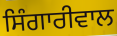
ਸਿੰਗਾਰੀਵਾਲ